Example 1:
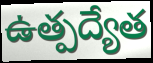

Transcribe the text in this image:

ఉత్పద్యేత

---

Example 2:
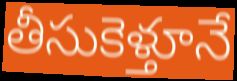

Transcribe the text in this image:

తీసుకెళ్తూనే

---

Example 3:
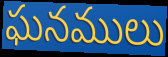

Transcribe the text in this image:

ఘనములు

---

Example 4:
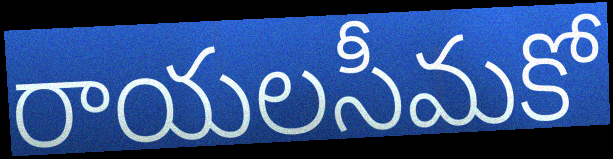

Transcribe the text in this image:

రాయలసీమకో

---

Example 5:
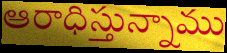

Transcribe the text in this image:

ఆరాధిస్తున్నాము